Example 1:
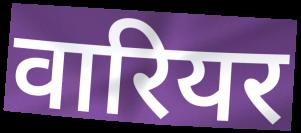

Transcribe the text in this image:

वारियर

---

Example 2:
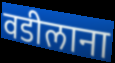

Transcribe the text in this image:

वडीलाना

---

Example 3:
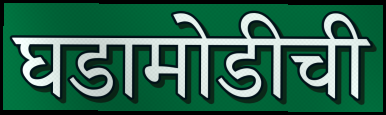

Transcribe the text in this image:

घडामोडीची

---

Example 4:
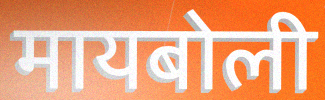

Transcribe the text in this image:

मायबोली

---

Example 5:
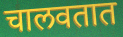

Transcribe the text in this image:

चालवतात